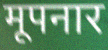
मूपनार